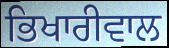
ਭਿਖਾਰੀਵਾਲ